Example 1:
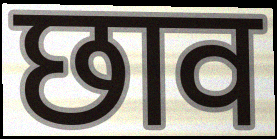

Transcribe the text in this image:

छाव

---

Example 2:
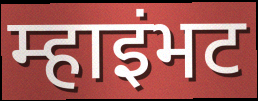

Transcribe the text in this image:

म्हाइंभट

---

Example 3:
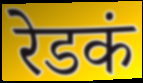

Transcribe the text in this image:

रेडकं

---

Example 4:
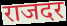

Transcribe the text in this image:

राजदर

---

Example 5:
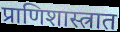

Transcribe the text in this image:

प्राणिशास्त्रात